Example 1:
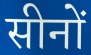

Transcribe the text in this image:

सीनों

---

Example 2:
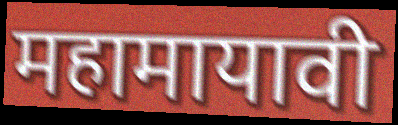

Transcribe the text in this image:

महामायावी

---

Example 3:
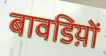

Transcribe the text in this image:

बावडिय़ों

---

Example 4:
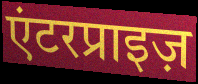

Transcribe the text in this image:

एंटरप्राइज़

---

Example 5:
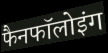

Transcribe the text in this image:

फैनफॉलोइंग